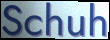
Schuh